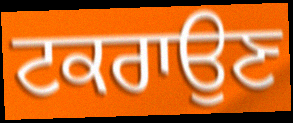
ਟਕਰਾਉਣ